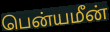
பென்யமீன்